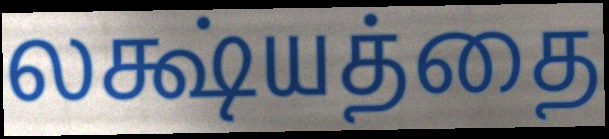
லக்ஷ்யத்தை